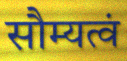
सौम्यत्वं